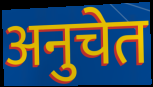
अनुचेत